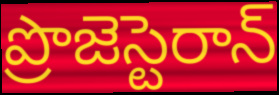
ప్రొజెస్టెరాన్